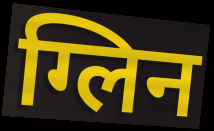
ग्लिन